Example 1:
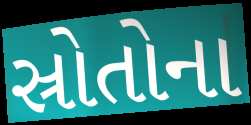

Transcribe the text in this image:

સ્રોતોના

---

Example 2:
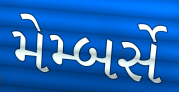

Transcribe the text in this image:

મેમ્બર્સે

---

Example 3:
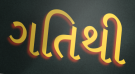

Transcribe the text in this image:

ગતિથી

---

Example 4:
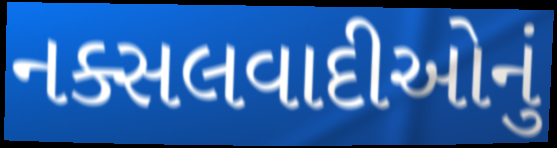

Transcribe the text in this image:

નક્સલવાદીઓનું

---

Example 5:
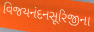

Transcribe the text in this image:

વિજયનંદનસૂરિજીના